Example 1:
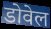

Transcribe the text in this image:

डोवेल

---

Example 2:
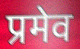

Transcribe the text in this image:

प्रमेव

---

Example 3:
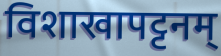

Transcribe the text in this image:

विशाखापट्टनम्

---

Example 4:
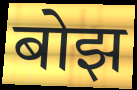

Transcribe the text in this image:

बोझ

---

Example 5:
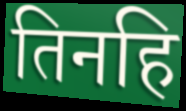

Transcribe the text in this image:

तिनहि